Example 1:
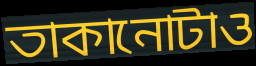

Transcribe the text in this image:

তাকানোটাও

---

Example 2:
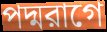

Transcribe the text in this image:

পদ্মরাগে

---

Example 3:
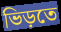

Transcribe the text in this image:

ভিড়তে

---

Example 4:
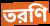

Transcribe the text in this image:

তরণি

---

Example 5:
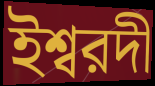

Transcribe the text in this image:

ইশ্বরদী